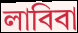
লাবিবা